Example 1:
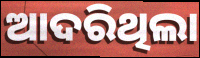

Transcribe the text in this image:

ଆଦରିଥିଲା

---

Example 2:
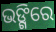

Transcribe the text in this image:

ଭଙ୍ଗିରେ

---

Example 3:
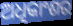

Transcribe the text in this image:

ଅଧିକାଂଶର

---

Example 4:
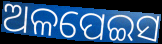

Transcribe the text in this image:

ଅଳପେଇସ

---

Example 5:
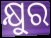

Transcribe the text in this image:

କ୍ଷୁର